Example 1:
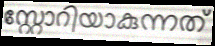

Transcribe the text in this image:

സ്റ്റോറിയാകുന്നത്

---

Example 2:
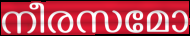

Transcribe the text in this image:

നീരസമോ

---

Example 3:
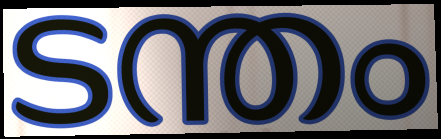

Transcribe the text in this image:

ടന്തം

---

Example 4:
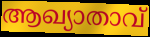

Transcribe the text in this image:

ആഖ്യാതാവ്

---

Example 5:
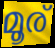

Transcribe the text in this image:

മൂര്